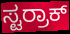
ಸ್ಟರ್ರಾಕ್